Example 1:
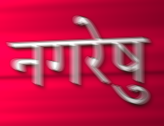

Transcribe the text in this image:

नगरेषु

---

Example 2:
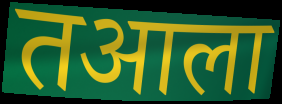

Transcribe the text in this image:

तआला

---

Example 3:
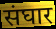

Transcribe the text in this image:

संघार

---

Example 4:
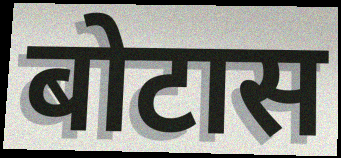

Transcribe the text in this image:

बोटास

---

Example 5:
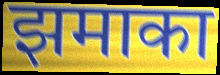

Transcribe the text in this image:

झमाका